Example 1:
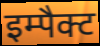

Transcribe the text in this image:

इम्पैक्ट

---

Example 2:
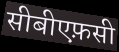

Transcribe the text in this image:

सीबीएफ़सी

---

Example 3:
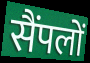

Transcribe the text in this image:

सैंपलों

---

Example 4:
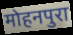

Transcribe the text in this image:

मोहनपुरा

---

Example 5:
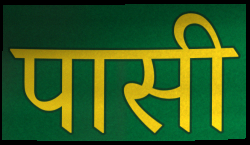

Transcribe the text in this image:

पासी